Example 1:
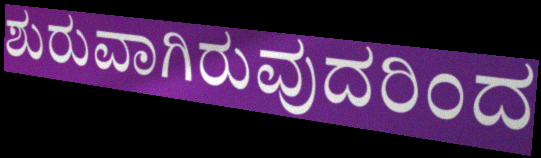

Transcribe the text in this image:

ಶುರುವಾಗಿರುವುದರಿಂದ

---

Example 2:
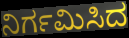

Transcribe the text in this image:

ನಿರ್ಗಮಿಸಿದ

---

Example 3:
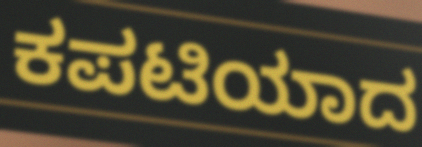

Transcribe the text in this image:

ಕಪಟಿಯಾದ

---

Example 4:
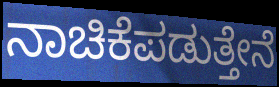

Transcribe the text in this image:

ನಾಚಿಕೆಪಡುತ್ತೇನೆ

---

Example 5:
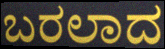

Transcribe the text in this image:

ಬರಲಾದ